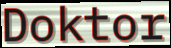
Doktor